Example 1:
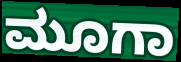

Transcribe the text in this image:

ಮೂಗಾ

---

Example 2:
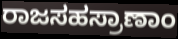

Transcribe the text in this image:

ರಾಜಸಹಸ್ರಾಣಾಂ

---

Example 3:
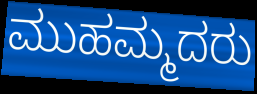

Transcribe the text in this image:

ಮುಹಮ್ಮದರು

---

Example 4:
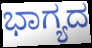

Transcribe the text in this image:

ಭಾಗ್ಯದ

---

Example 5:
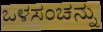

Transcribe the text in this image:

ಒಳಸಂಚನ್ನು